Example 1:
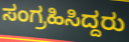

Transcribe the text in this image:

ಸಂಗ್ರಹಿಸಿದ್ದರು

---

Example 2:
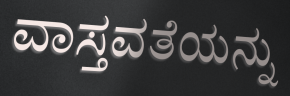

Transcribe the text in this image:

ವಾಸ್ತವತೆಯನ್ನು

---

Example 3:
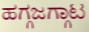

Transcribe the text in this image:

ಹಗ್ಗಜಗ್ಗಾಟ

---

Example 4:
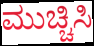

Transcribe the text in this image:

ಮುಚ್ಚಿಸಿ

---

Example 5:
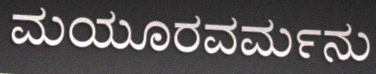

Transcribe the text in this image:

ಮಯೂರವರ್ಮನು